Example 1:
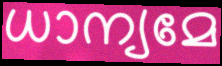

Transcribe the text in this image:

ധാന്യമേ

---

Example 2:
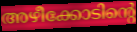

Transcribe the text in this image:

അഴീക്കോടിന്റെ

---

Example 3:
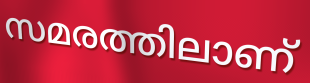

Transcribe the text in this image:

സമരത്തിലാണ്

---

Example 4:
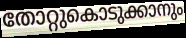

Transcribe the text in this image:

തോറ്റുകൊടുക്കാനും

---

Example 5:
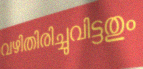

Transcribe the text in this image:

വഴിതിരിച്ചുവിട്ടതും